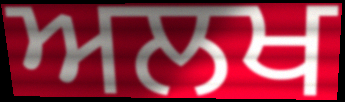
ਅਲਖ